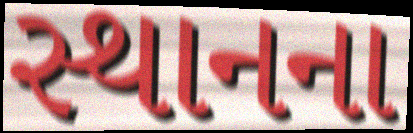
સ્થાનના